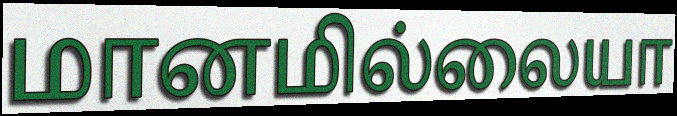
மானமில்லையா